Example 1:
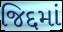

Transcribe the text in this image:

જિદ્દમાં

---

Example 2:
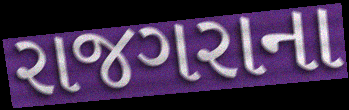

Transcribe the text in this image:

રાજગરાના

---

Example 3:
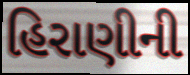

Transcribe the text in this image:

હિરાણીની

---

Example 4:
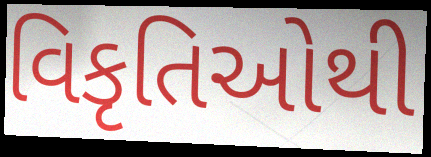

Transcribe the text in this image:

વિકૃતિઓથી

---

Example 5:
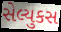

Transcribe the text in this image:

સેલ્યુકસ